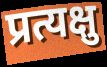
प्रत्यक्षु